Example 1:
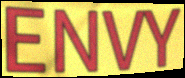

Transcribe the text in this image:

ENVY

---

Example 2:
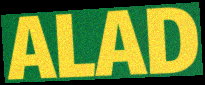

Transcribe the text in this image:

ALAD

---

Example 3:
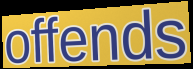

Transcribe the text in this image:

offends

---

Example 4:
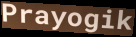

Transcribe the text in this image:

Prayogik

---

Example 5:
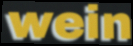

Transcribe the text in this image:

wein